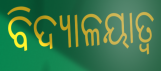
ବିଦ୍ୟାଳୟାତ୍ବ